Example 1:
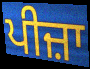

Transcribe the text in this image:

ਪੀਜ਼ਾ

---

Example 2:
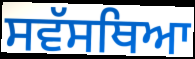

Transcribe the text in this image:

ਸਵੱਸਥਿਆ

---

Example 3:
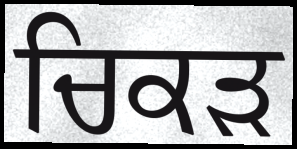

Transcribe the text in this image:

ਚਿਕੜ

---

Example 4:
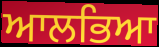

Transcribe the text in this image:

ਆਲਭਿਆ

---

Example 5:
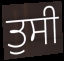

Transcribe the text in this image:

ਤੁਸੀ